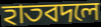
হাতবদলে